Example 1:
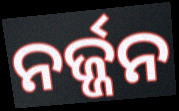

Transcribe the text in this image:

ନର୍ଜ୍ଜନ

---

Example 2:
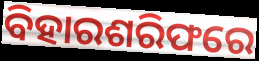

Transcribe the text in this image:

ବିହାରଶରିଫରେ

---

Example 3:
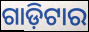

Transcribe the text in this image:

ଗାଡ଼ିଟାର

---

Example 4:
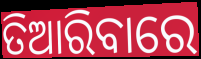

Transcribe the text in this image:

ତିଆରିବାରେ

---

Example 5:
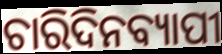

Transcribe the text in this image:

ଚାରିଦିନବ୍ୟାପୀ